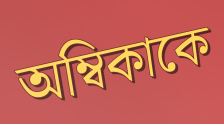
অম্বিকাকে